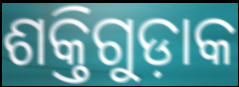
ଶକ୍ତିଗୁଡ଼ାକ